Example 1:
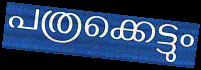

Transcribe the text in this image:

പത്രക്കെട്ടും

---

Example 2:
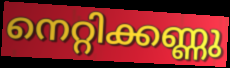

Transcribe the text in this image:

നെറ്റിക്കണ്ണു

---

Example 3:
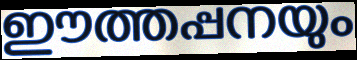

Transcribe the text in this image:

ഈത്തപ്പനയും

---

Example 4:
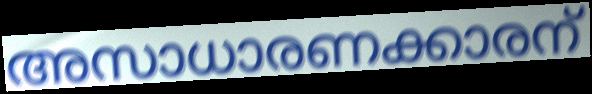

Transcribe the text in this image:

അസാധാരണക്കാരന്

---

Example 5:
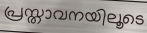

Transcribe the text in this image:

പ്രസ്താവനയിലൂടെ